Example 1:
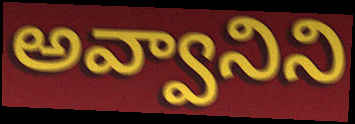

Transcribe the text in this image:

అవ్వానిని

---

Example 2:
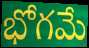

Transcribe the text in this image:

భోగమే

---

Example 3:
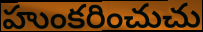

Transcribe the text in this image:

హుంకరించుచు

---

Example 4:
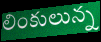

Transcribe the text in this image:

లింకులున్న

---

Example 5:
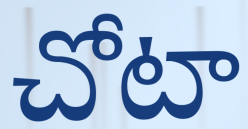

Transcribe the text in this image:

చోటా